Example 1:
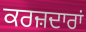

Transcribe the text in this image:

ਕਰਜ਼ਦਾਰਾਂ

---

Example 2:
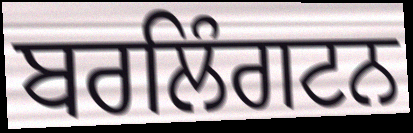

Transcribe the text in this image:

ਬਰਲਿੰਗਟਨ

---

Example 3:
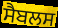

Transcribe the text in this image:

ਸੈਬਲਸ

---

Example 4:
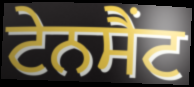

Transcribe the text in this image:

ਟੇਨਸੈਂਟ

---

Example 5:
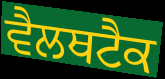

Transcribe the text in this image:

ਵੈਲਥਟੈਕ